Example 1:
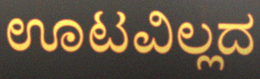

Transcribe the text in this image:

ಊಟವಿಲ್ಲದ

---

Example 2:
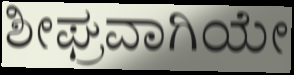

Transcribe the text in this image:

ಶೀಘ್ರವಾಗಿಯೇ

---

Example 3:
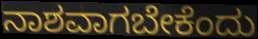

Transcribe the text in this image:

ನಾಶವಾಗಬೇಕೆಂದು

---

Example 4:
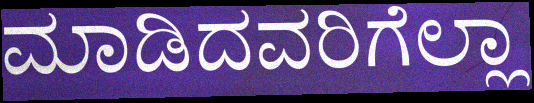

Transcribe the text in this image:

ಮಾಡಿದವರಿಗೆಲ್ಲಾ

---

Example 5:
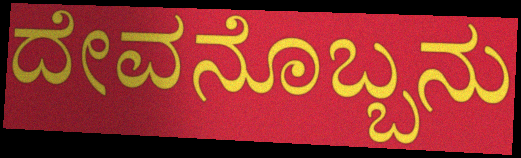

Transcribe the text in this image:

ದೇವನೊಬ್ಬನು